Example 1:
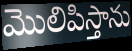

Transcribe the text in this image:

మొలిపిస్తాను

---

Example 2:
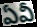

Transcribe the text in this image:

ఏవీ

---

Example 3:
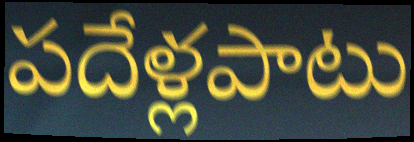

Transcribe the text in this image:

పదేళ్లపాటు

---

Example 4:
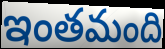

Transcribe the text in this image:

ఇంతమంది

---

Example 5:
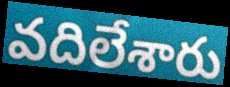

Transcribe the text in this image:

వదిలేశారు